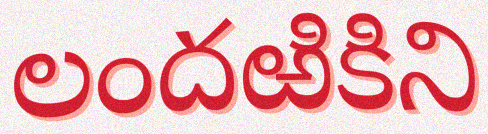
లందఱికిని